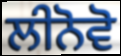
ਲੀਨੋਵੋ